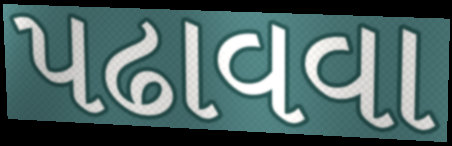
પઢાવવા